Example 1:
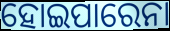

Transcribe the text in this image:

ହୋଇପାରେନା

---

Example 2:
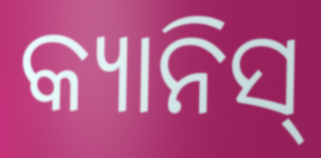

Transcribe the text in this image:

କ୍ୟାନିସ୍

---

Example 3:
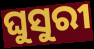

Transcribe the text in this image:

ଘୁସୁରୀ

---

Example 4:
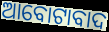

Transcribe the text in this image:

ଆବୋଟାବାଦ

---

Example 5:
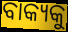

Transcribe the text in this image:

ବାକ୍ୟକୁ